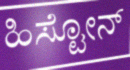
ಹಿಸ್ಟೋನ್